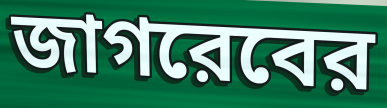
জাগরেবের